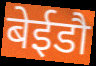
बेईडौ